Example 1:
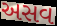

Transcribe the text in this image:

અસવ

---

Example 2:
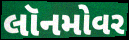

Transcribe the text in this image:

લૉનમોવર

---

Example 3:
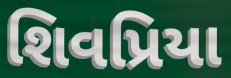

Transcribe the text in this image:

શિવપ્રિયા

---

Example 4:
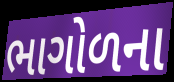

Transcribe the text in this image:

ભાગોળના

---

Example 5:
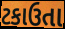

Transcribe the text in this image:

ટકાઉતા